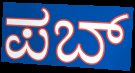
ಪಬ್